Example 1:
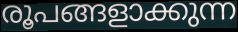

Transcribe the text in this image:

രൂപങ്ങളാക്കുന്ന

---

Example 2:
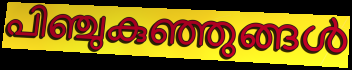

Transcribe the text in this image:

പിഞ്ചുകുഞ്ഞുങ്ങൾ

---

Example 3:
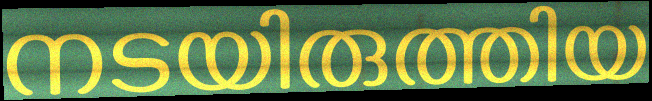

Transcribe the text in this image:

നടയിരുത്തിയ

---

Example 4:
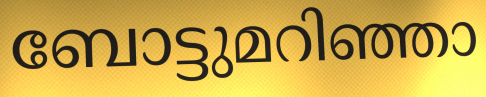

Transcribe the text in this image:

ബോട്ടുമറിഞ്ഞാ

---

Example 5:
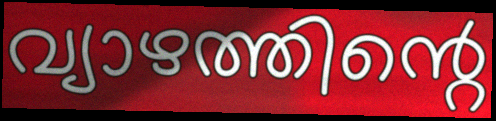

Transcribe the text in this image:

വ്യാഴത്തിന്റെ